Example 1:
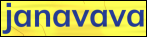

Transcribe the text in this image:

janavava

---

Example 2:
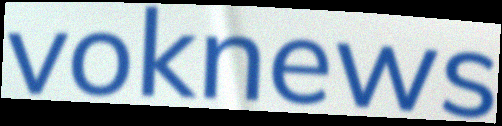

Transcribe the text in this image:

voknews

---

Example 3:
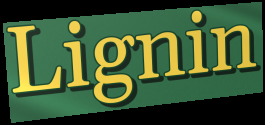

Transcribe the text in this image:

Lignin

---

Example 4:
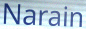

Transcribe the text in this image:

Narain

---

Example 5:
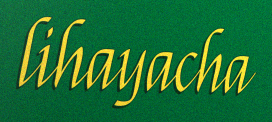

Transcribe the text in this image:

lihayacha